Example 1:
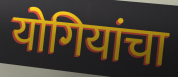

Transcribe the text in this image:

योगियांचा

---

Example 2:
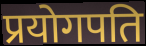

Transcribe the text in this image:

प्रयोगपति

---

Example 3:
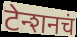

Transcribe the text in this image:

टेन्शनचं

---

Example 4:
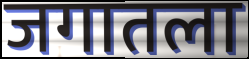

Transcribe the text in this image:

जगातला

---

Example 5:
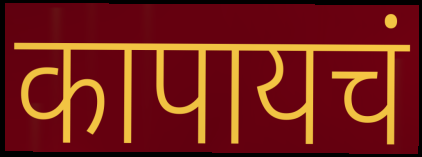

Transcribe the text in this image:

कापायचं